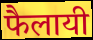
फैलायी